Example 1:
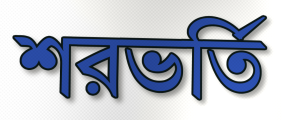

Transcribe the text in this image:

শরভর্তি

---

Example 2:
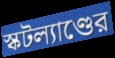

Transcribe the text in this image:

স্কটল্যাণ্ডের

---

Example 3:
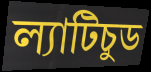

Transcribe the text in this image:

ল্যাটিচুড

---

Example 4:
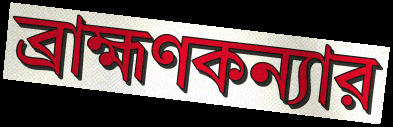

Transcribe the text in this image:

ব্রাহ্মণকন্যার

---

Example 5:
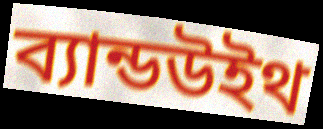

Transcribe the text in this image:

ব্যান্ডউইথ